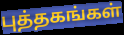
புத்தகங்கள்